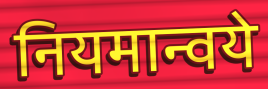
नियमान्वये